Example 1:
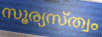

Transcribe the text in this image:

സൂര്യസ്ത്വം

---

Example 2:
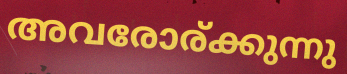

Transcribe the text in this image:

അവരോര്ക്കുന്നു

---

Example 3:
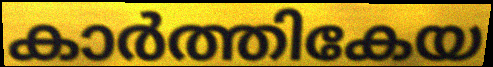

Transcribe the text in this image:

കാർത്തികേയ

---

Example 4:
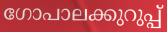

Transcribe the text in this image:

ഗോപാലക്കുറുപ്പ്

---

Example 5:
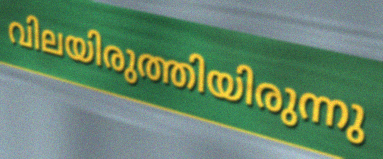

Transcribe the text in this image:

വിലയിരുത്തിയിരുന്നു